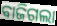
ବାଜିଗଲା